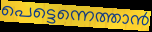
പെട്ടെന്നെത്താൻ